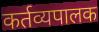
कर्तव्यपालक